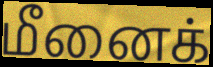
மீனைக்